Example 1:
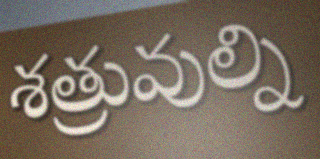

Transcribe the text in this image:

శత్రువుల్ని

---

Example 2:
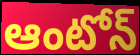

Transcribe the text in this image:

ఆంటోన్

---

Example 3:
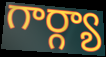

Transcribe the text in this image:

గార్గ్యా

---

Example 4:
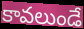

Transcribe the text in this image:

కావలుండే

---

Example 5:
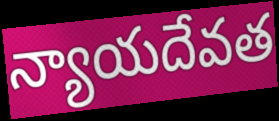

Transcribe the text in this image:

న్యాయదేవత